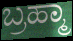
ಬ್ರಹ್ಮಾ